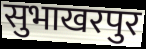
सुभाखरपुर